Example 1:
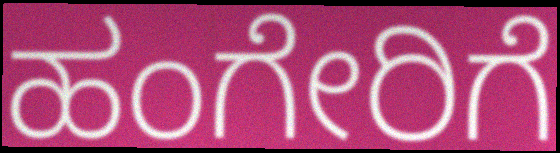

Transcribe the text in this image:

ಹಂಗೇರಿಗೆ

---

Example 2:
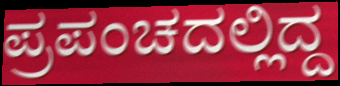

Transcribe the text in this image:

ಪ್ರಪಂಚದಲ್ಲಿದ್ದ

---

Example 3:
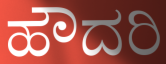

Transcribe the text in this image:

ಹೌದರಿ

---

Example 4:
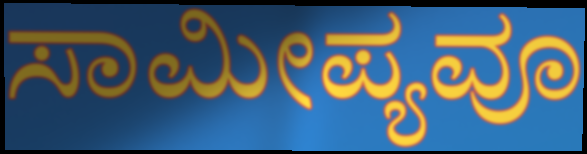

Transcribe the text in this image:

ಸಾಮೀಪ್ಯವೂ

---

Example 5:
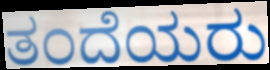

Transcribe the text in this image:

ತಂದೆಯರು